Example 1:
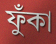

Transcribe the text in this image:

ফুঁকা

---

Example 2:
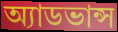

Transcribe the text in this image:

অ্যাডভান্স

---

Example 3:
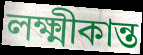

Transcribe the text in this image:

লক্ষ্মীকান্ত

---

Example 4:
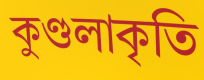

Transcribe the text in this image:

কুণ্ডলাকৃতি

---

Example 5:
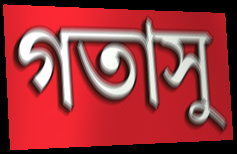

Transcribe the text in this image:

গতাসু